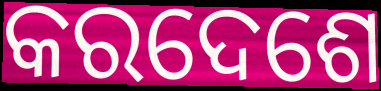
କରଦେଶେ